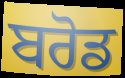
ਬਰੋਡ